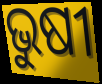
ଭୁଷୀ